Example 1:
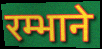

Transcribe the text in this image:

रम्भाने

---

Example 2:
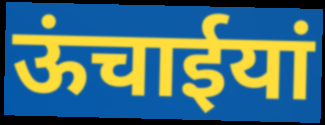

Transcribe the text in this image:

ऊंचाईयां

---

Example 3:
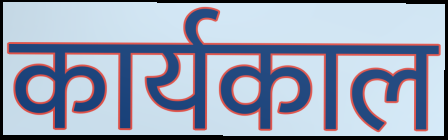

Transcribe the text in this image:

कार्यकाल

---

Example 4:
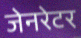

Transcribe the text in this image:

जेनरेटर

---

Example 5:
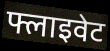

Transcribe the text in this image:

फ्लाइवेट